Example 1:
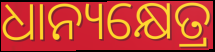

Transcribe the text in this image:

ଧାନ୍ୟକ୍ଷେତ୍ର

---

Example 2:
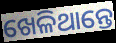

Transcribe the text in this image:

ଖେଳିଥାନ୍ତେ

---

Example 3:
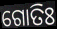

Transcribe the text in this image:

ଗୋତିଃ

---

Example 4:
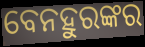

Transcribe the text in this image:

ବେନହୁରଙ୍କର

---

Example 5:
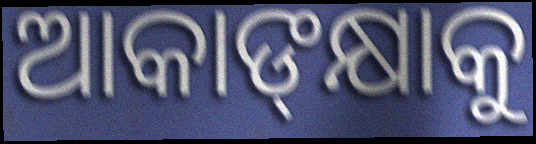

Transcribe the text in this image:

ଆକାଙ୍‍କ୍ଷାକୁ